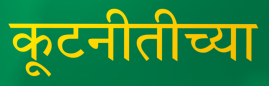
कूटनीतीच्या